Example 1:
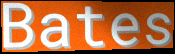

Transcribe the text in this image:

Bates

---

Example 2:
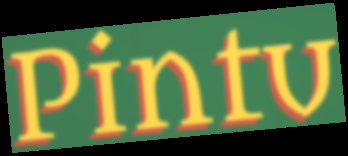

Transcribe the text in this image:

Pintu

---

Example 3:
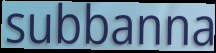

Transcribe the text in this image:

subbanna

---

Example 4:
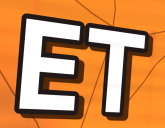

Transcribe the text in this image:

ET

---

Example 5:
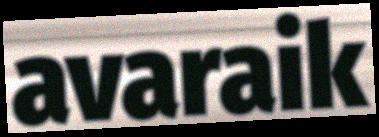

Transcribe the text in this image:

avaraik